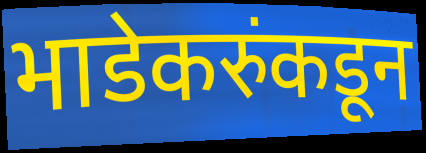
भाडेकरुंकडून